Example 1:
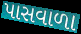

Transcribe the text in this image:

પાસવાળા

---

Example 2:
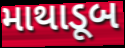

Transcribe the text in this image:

માથાડૂબ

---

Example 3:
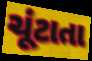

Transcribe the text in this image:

ચૂંટાતા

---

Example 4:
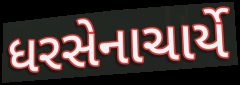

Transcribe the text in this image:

ધરસેનાચાર્યે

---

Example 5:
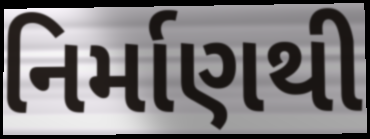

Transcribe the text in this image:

નિર્માણથી